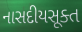
નાસદીયસૂક્ત